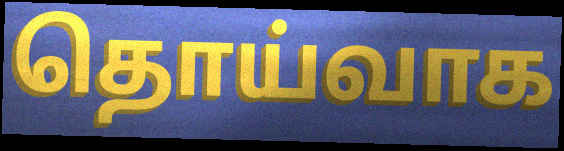
தொய்வாக